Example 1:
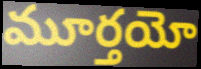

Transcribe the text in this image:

మూర్తయో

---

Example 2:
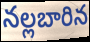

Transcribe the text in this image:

నల్లబారిన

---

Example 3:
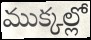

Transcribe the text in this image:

ముక్కల్లో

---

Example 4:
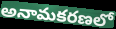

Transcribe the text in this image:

అనామకరణలో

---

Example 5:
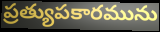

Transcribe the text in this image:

ప్రత్యుపకారమును